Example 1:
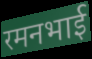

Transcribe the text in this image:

रमनभाई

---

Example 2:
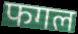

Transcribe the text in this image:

फगल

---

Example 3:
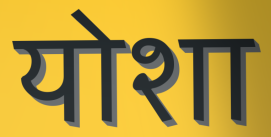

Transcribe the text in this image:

योशा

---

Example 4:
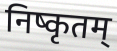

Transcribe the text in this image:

निष्कृतम्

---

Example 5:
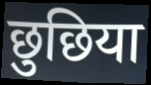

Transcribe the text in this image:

छुछिया